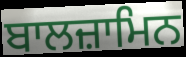
ਬਾਲਜ਼ਾਮਿਨ